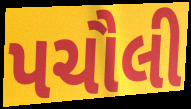
પચૌલી